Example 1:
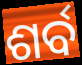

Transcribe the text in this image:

ଶର୍ବ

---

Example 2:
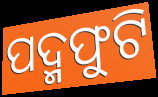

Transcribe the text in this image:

ପଦ୍ମଫୁଟି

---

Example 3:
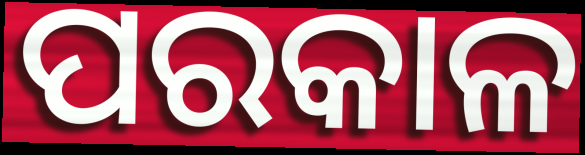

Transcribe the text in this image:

ପରକାଳ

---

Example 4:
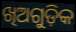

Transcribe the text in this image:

ଖିଅଗୁଡ଼ିକ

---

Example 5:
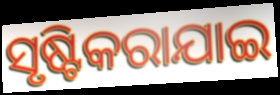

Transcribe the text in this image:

ସୃଷ୍ଟିକରାଯାଇ